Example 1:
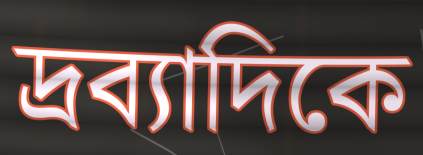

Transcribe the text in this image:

দ্রব্যাদিকে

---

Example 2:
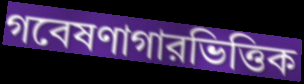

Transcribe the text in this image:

গবেষণাগারভিত্তিক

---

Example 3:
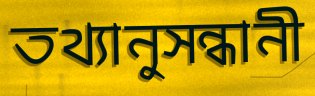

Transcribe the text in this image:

তথ্যানুসন্ধানী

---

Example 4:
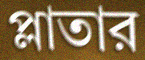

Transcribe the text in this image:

প্লাতার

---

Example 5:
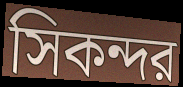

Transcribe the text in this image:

সিকন্দর